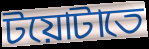
টয়োটাতে